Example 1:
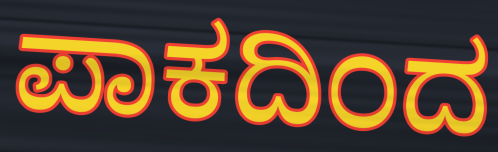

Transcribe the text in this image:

ಪಾಕದಿಂದ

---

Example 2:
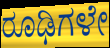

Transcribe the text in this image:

ರೂಢಿಗಳೇ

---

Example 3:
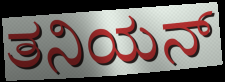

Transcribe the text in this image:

ತನಿಯನ್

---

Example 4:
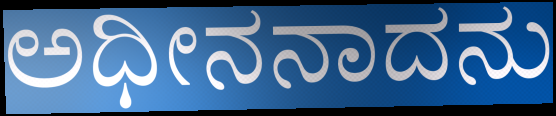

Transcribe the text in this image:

ಅಧೀನನಾದನು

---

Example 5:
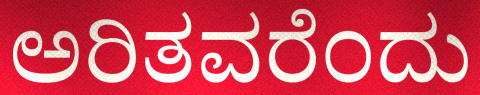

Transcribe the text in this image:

ಅರಿತವರೆಂದು